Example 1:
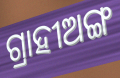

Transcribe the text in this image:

ଗ୍ରାହୀଅଙ୍ଗ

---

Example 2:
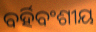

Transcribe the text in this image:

ବର୍ହିବଂଶୀୟ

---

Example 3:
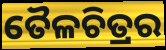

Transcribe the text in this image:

ତୈଳଚିତ୍ରର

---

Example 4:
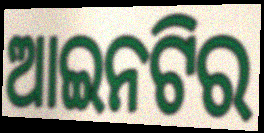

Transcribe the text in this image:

ଆଇନଟିର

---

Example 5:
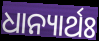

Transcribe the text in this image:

ଧାନ୍ୟାର୍ଥଃ